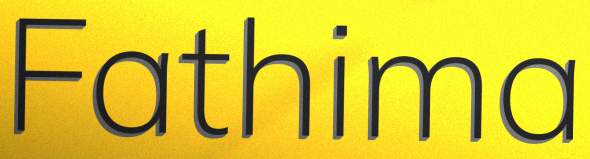
Fathima